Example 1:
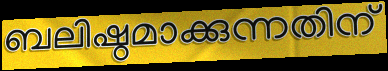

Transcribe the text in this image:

ബലിഷ്ഠമാക്കുന്നതിന്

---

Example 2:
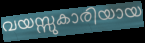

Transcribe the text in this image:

വയസ്സുകാരിയായ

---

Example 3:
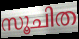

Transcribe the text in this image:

സൂചിത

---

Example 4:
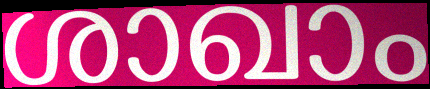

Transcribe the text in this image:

ശാഖാം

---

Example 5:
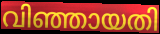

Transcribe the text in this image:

വിഞ്ഞായതി